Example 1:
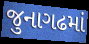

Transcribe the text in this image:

જુનાગઢમાં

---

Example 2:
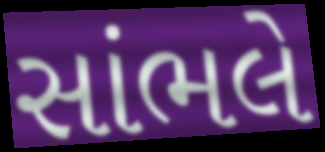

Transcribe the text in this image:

સાંભલે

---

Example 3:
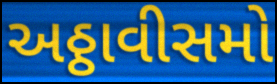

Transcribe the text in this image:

અઠ્ઠાવીસમો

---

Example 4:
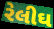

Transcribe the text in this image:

રેલીઘ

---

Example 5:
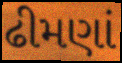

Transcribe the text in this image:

ઢીમણાં